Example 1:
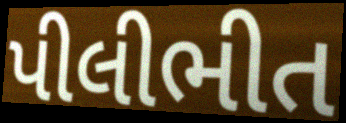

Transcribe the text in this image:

પીલીભીત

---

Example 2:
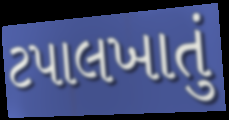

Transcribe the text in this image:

ટપાલખાતું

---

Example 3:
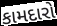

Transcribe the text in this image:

કામદારો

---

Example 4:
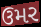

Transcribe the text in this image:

ઉમર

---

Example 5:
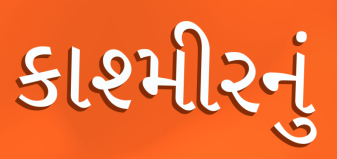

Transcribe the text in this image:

કાશ્મીરનું